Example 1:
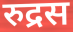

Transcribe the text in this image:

रुद्रस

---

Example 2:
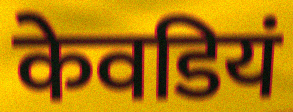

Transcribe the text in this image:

केवडियं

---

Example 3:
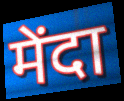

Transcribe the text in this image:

मेंदा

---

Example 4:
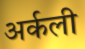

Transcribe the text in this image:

अर्कली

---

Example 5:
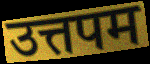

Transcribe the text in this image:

उत्तपम